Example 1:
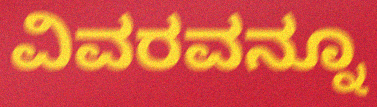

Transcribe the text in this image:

ವಿವರವನ್ನೂ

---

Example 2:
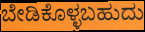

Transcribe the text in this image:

ಬೇಡಿಕೊಳ್ಳಬಹುದು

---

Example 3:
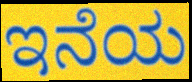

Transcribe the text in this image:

ಇನೆಯ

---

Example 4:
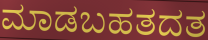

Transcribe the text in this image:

ಮಾಡಬಹತದತ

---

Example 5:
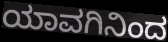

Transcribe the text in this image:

ಯಾವಗಿನಿಂದ